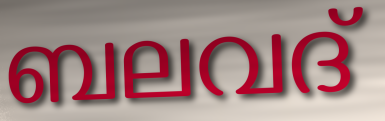
ബലവദ്